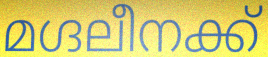
മഗ്ദലീനക്ക്